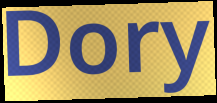
Dory